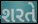
શરતે